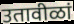
उतावीळां